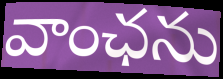
వాంఛను